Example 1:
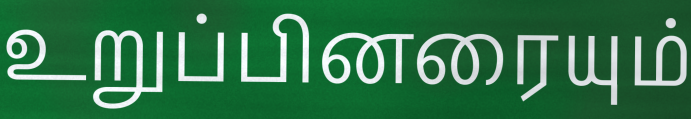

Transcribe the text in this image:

உறுப்பினரையும்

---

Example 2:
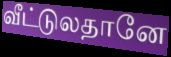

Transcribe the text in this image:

வீட்டுலதானே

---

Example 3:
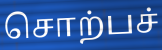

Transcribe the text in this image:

சொற்பச்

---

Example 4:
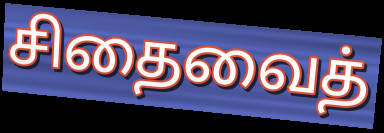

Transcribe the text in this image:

சிதைவைத்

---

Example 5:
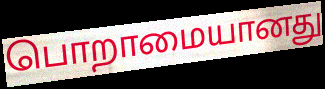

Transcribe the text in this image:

பொறாமையானது